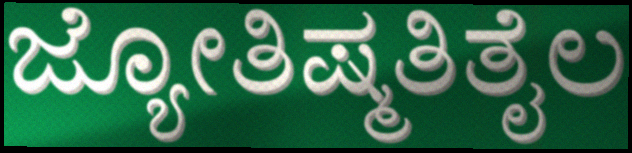
ಜ್ಯೋತಿಷ್ಮತಿತೈಲ